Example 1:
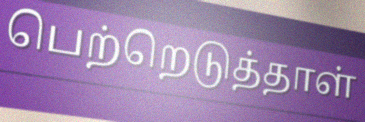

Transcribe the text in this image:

பெற்றெடுத்தாள்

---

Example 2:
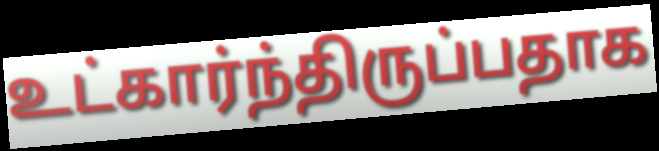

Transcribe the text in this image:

உட்கார்ந்திருப்பதாக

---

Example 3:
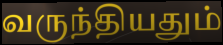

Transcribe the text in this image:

வருந்தியதும்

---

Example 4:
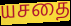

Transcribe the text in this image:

யசதை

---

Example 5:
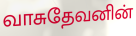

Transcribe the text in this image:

வாசுதேவனின்